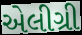
એલીગ્રી